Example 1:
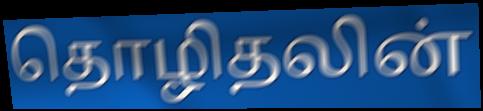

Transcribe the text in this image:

தொழிதலின்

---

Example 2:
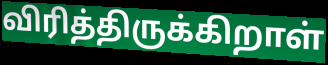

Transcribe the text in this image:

விரித்திருக்கிறாள்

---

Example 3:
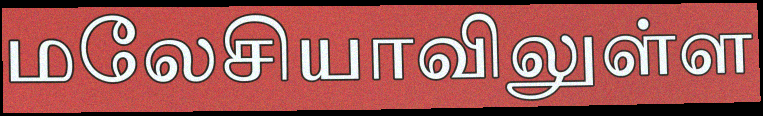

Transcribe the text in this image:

மலேசியாவிலுள்ள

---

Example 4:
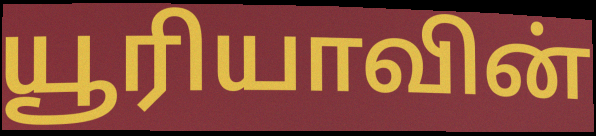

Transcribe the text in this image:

யூரியாவின்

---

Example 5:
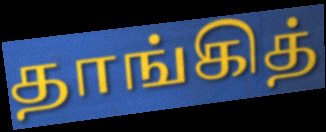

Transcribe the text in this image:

தாங்கித்